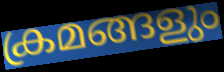
ക്രമങ്ങളും